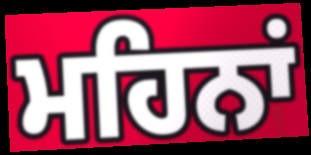
ਮਹਿਨਾਂ